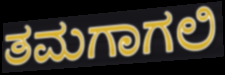
ತಮಗಾಗಲಿ